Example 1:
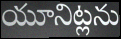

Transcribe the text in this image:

యూనిట్లను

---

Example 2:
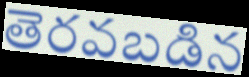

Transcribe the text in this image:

తెరవబడిన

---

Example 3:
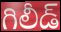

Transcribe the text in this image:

గిలీడ్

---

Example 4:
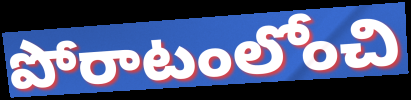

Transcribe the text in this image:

పోరాటంలోంచి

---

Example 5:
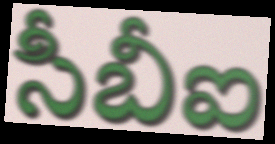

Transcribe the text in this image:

సీబీఐ